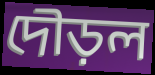
দৌড়ল